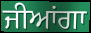
ਜੀਆਂਗਾ